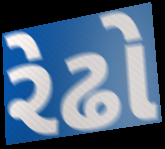
રેઢો